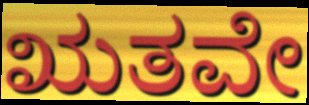
ಋತವೇ